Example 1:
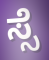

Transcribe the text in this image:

ಸ್ಸೆ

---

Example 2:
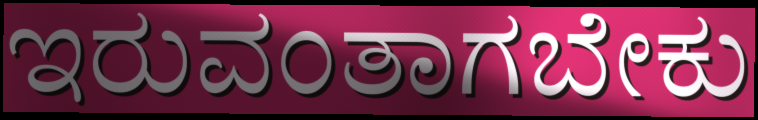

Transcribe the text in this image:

ಇರುವಂತಾಗಬೇಕು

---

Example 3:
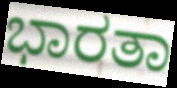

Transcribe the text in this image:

ಭಾರತಾ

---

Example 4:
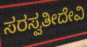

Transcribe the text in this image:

ಸರಸ್ವತೀದೇವಿ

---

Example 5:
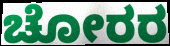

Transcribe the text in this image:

ಚೋರರ